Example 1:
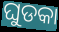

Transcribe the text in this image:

ଘୁଡକା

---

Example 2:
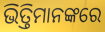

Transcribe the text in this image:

ଭିତ୍ତିମାନଙ୍କରେ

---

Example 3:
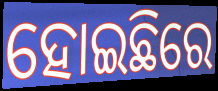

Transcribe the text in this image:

ହୋଇଛିରେ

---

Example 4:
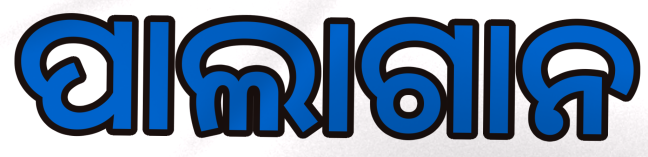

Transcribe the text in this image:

ପାଲାଗାନ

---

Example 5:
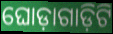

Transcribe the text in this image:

ଘୋଡ଼ାଗାଡ଼ିଟି